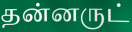
தன்னருட்